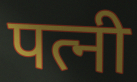
पत्‍नी